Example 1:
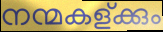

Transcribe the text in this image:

നന്മകള്ക്കും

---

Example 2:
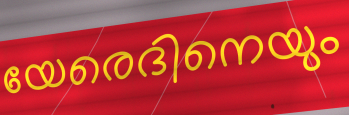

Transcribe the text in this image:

യേരെദിനെയും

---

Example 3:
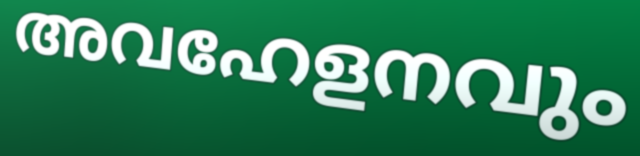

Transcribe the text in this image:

അവഹേളനവും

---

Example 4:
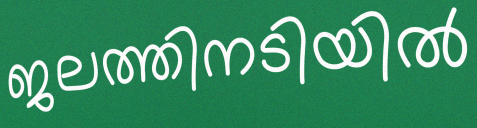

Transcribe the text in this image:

ജലത്തിനടിയിൽ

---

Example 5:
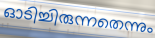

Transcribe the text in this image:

ഓടിച്ചിരുന്നതെന്നും